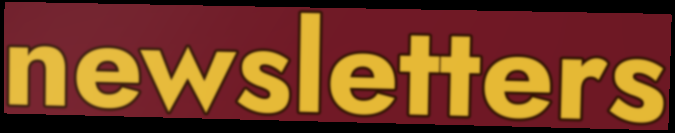
newsletters